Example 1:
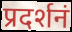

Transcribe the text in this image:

प्रदर्शनं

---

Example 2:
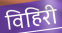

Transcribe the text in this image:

विहिरी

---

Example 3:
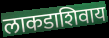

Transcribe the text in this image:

लाकडाशिवाय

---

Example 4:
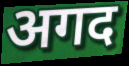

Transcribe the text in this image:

अगद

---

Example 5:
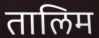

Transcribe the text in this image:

तालिम